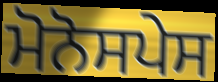
ਮੋਨੋਸਪੇਸ